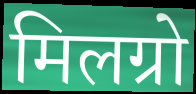
मिलग्रो